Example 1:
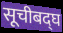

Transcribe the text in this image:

सूचीबद्घ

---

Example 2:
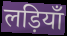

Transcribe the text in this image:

लड़ियाँ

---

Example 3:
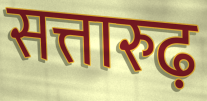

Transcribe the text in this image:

सत्तारुढ़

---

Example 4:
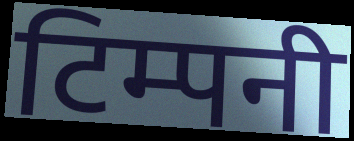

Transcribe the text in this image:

टिम्पनी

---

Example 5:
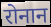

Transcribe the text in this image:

रोनान